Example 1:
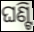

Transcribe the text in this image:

ଘଣ୍ଟି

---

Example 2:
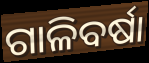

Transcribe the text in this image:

ଗାଳିବର୍ଷା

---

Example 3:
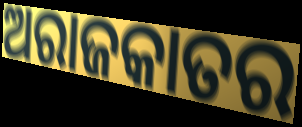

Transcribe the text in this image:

ଅରାଜକାତର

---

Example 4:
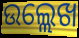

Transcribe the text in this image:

ଉଲ୍ଲେଖ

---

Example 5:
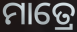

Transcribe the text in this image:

ମାତ୍ରେ